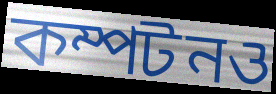
কম্পটনও